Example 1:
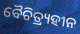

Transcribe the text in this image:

ବୈଚିତ୍ର୍ୟହୀନ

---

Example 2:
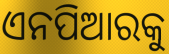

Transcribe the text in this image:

ଏନପିଆରକୁ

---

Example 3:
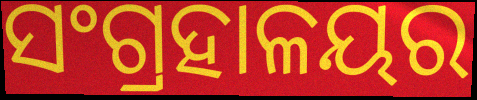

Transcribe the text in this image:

ସଂଗ୍ରହାଳୟର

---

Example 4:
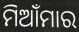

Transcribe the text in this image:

ମିଆଁମାର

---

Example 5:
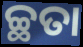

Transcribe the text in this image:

ଚ୍ଛତା